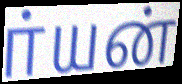
ர்யன்